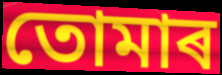
তোমাৰ